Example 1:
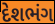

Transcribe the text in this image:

દેશભંગ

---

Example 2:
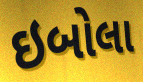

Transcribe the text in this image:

ઇબોલા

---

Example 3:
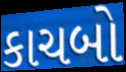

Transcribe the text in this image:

કાચબો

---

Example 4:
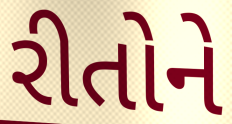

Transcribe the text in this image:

રીતોને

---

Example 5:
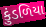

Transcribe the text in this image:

કુંડળિયા